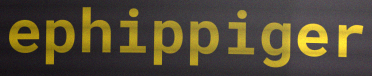
ephippiger